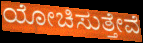
ಯೋಚಿಸುತ್ತೇವೆ